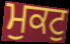
ਮੁਕਟੁ